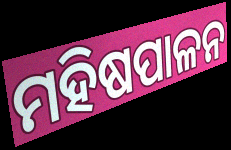
ମହିଷପାଳନ